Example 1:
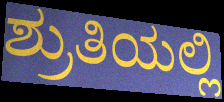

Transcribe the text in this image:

ಶ್ರುತಿಯಲ್ಲಿ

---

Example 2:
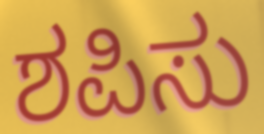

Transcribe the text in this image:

ಶಪಿಸು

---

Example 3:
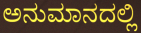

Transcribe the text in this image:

ಅನುಮಾನದಲ್ಲಿ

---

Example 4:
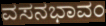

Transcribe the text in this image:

ವಸನಭಾವಂ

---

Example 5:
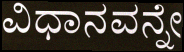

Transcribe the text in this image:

ವಿಧಾನವನ್ನೇ